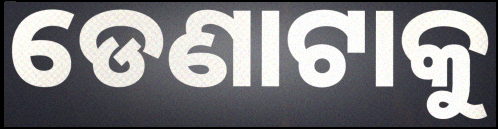
ଡେଣାଟାକୁ